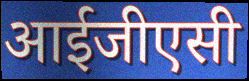
आईजीएसी